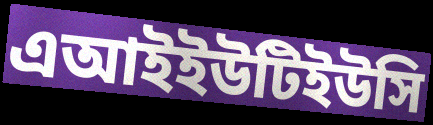
এআইইউটিইউসি